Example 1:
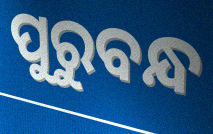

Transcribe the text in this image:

ପୁରୁବନ୍ଧ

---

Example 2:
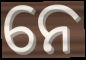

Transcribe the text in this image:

ନେ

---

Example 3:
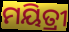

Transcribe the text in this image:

ମୟିତ୍ରୀ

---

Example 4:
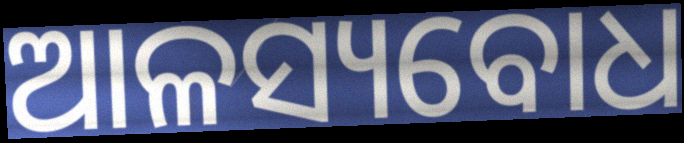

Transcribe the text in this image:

ଆଳସ୍ୟବୋଧ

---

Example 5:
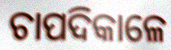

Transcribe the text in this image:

ଚାପଦିକାଳେ